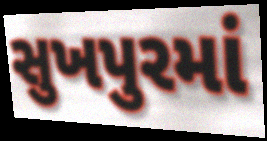
સુખપુરમાં